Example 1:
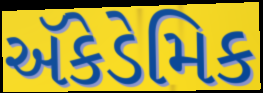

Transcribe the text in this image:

ઍકેડેમિક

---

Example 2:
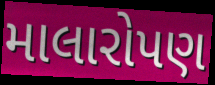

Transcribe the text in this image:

માલારોપણ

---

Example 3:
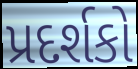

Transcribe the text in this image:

પ્રદર્શકો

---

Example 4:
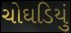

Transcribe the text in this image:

ચોઘડિયું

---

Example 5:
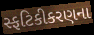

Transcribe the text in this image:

સ્ફટિકીકરણના